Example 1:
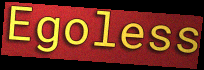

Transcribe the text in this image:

Egoless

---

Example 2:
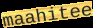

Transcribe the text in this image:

maahitee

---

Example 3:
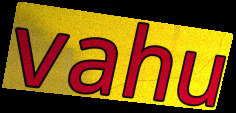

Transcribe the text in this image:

vahu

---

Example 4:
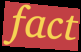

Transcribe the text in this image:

fact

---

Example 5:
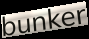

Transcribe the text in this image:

bunker